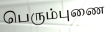
பெரும்புணை